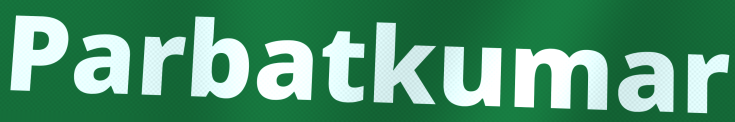
Parbatkumar